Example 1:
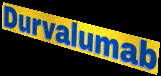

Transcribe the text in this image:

Durvalumab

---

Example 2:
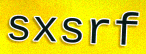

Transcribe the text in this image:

sxsrf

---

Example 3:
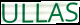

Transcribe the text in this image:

ULLAS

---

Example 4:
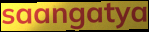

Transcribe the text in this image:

saangatya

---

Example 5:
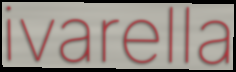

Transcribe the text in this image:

ivarella